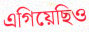
এগিয়েছিও